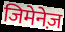
जिमेनेज़